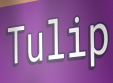
Tulip